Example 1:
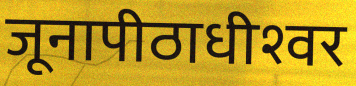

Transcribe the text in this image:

जूनापीठाधीश्वर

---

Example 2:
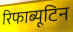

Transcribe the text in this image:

रिफाब्यूटिन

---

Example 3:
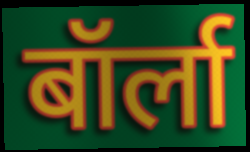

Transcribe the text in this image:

बॉर्ला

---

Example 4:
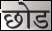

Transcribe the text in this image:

छोड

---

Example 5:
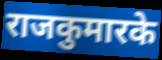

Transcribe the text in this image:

राजकुमारके